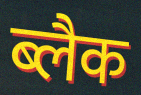
ब्‍लैक